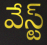
వేస్ట్